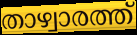
താഴ്വാരത്ത്